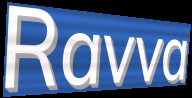
Ravva